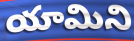
యామిని